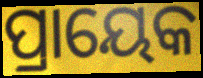
ପ୍ରାୟେକ